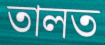
তালত